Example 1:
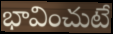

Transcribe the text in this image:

భావించుటే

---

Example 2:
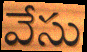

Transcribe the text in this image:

వేసు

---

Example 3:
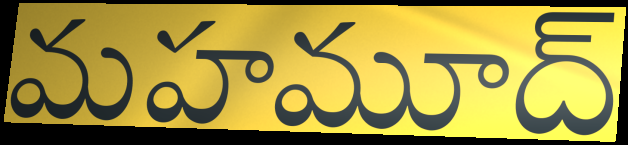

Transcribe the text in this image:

మహమూద్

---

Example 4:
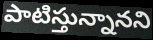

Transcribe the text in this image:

పాటిస్తున్నానని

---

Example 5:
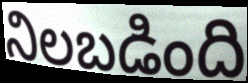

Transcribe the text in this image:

నిలబడింది